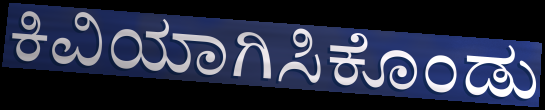
ಕಿವಿಯಾಗಿಸಿಕೊಂಡು